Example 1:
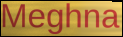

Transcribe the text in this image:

Meghna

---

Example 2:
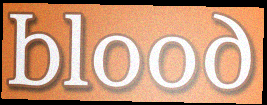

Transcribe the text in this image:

blood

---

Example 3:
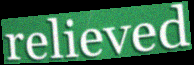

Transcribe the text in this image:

relieved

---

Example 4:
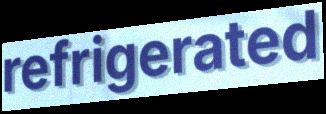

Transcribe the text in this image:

refrigerated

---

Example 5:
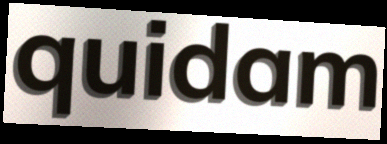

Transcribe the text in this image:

quidam